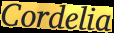
Cordelia